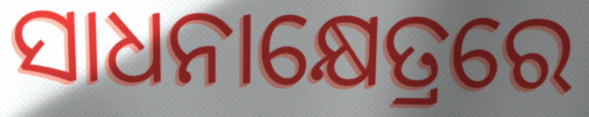
ସାଧନାକ୍ଷେତ୍ରରେ